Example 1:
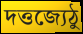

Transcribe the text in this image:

দত্তজ্যেঠু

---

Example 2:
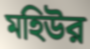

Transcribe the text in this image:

মহিউর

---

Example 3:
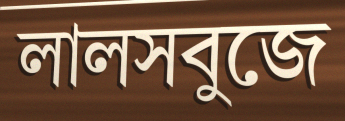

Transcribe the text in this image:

লালসবুজে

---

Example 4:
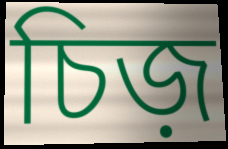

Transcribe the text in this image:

চিজ়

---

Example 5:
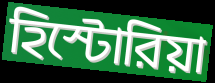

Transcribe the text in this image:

হিস্টোরিয়া